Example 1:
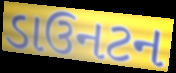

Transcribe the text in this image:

ડાઉનટન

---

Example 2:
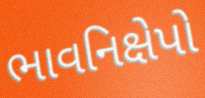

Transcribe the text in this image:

ભાવનિક્ષેપો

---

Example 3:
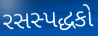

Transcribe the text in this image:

રસસ્પદ્ધકો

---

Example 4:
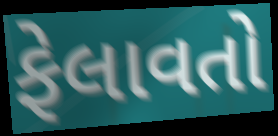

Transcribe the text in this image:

ફેલાવતો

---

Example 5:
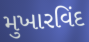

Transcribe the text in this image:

મુખારવિંદ